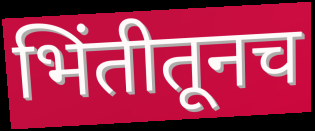
भिंतीतूनच